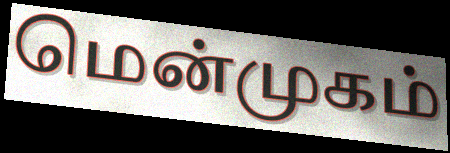
மென்முகம்